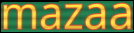
mazaa